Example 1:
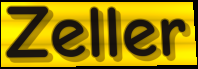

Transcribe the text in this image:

Zeller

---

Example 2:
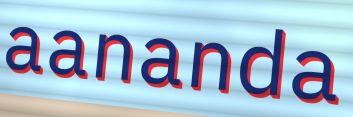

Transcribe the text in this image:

aananda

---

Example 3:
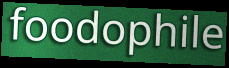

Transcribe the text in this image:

foodophile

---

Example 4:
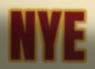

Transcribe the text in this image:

NYE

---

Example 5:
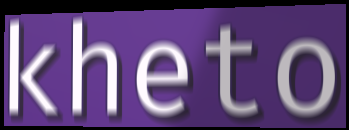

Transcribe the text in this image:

kheto